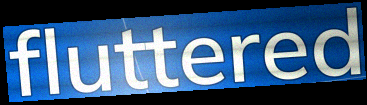
fluttered